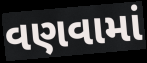
વણવામાં